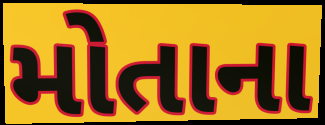
મોતાના